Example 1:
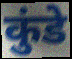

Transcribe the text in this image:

कुंडे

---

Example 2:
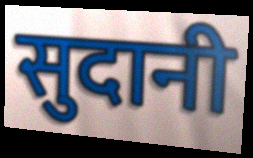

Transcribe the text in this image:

सुदानी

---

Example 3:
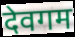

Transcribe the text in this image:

देवगम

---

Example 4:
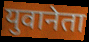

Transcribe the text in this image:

युवानेता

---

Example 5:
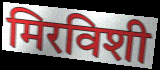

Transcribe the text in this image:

मिरविशी